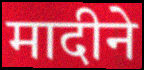
मादीने